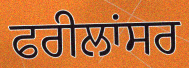
ਫਰੀਲਾਂਸਰ